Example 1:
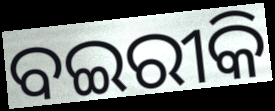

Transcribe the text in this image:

ବଇରୀକି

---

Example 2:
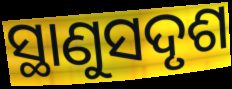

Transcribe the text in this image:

ସ୍ଥାଣୁସଦୃଶ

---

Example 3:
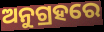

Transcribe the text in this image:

ଅନୁଗ୍ରହରେ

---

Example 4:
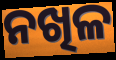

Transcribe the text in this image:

ନଖିଳ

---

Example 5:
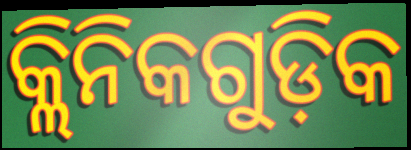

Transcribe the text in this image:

କ୍ଲିନିକଗୁଡ଼ିକ